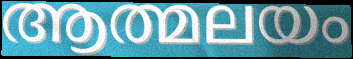
ആത്മലയം